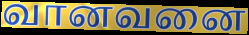
வானவனை